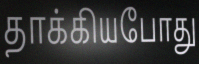
தாக்கியபோது